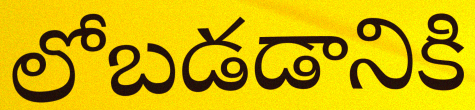
లోబడడానికి